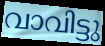
വാവിട്ടു